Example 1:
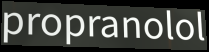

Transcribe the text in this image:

propranolol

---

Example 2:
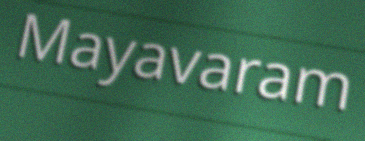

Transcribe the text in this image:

Mayavaram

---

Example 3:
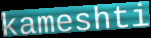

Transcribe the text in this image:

kameshti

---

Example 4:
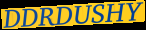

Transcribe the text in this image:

DDRDUSHY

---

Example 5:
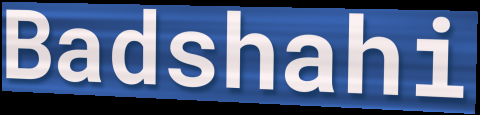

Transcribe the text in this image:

Badshahi